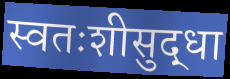
स्वतःशीसुद्धा